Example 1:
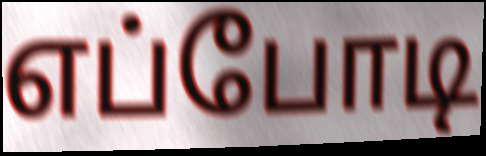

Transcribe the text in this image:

எப்போடி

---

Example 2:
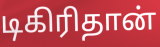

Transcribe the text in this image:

டிகிரிதான்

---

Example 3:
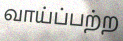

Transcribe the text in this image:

வாய்ப்பற்ற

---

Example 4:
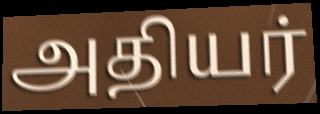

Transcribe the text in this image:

அதியர்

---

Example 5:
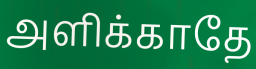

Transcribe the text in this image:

அளிக்காதே